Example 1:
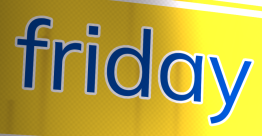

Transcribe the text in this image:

friday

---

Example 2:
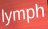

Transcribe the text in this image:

lymph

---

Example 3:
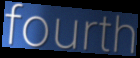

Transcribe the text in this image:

fourth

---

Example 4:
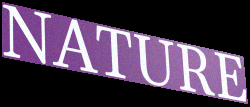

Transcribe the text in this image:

NATURE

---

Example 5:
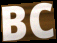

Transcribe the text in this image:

BC